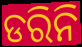
ଡରିନି